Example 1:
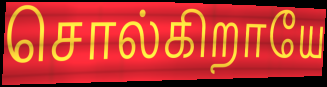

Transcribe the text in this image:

சொல்கிறாயே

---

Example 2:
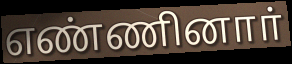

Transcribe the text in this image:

எண்ணினார்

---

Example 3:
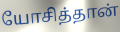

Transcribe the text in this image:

யோசித்தான்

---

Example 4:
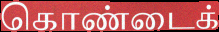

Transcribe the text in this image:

கொண்டைக்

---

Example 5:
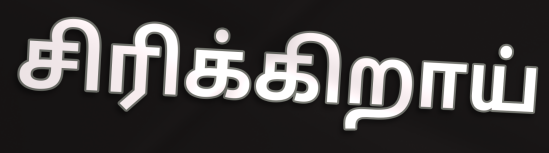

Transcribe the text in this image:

சிரிக்கிறாய்